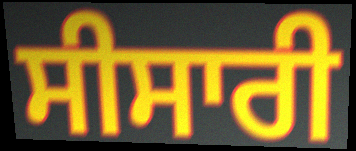
ਸੀਸਾਰੀ